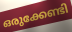
ഒരുക്കേണ്ടി